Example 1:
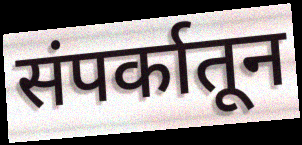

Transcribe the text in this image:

संपर्कातून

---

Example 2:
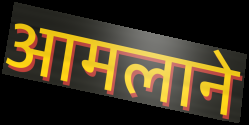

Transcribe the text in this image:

आमलाने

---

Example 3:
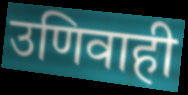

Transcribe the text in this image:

उणिवाही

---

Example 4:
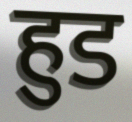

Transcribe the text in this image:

हुड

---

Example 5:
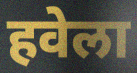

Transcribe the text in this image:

हवेला